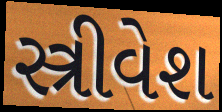
સ્ત્રીવેશ